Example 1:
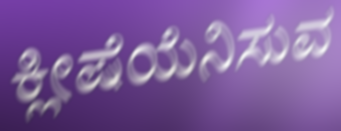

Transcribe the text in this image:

ಕ್ಲೀಷೆಯೆನಿಸುವ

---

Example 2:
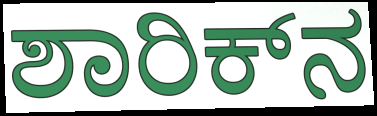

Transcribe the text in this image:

ಶಾರಿಕ್‌ನ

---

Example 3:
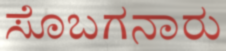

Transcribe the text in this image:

ಸೊಬಗನಾರು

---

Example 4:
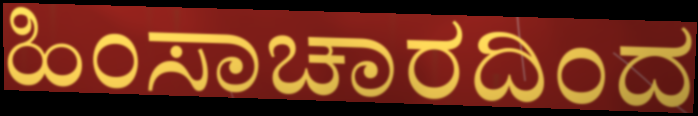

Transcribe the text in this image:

ಹಿಂಸಾಚಾರದಿಂದ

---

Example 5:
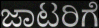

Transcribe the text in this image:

ಜಾಟರಿಗೆ